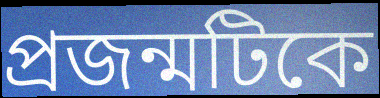
প্রজন্মটিকে